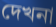
দেখনা